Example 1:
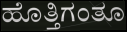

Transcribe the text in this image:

ಹೊತ್ತಿಗಂತೂ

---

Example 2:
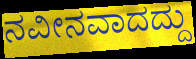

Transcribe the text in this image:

ನವೀನವಾದದ್ದು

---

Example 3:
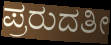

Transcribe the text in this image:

ಪ್ರರುದತೀ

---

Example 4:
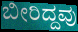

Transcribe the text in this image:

ಬೀರಿದ್ದವು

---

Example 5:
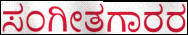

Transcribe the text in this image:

ಸಂಗೀತಗಾರರ